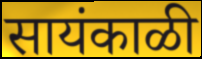
सायंकाळी